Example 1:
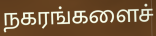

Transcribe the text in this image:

நகரங்களைச்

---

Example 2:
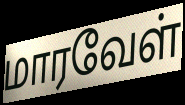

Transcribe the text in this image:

மாரவேள்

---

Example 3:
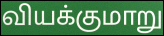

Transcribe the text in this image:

வியக்குமாறு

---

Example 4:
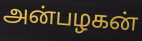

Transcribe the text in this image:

அன்பழகன்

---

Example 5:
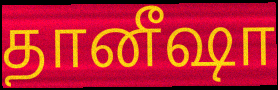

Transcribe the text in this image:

தானீஷா